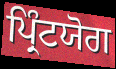
ਪ੍ਰਿੰਟਯੋਗ